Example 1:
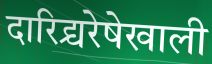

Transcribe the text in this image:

दारिद्र्यरेषेखाली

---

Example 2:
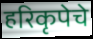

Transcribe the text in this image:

हरिकृपेचे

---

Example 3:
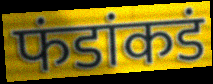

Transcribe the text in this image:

फंडांकडं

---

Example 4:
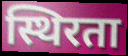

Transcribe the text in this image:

स्थिरता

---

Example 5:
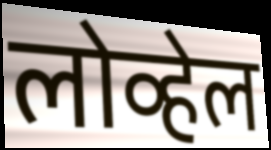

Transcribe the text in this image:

लोव्हेल